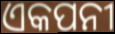
ଏକପନୀ